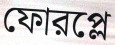
ফোরপ্লে